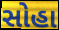
સોહા